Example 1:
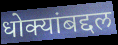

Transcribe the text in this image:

धोक्यांबद्दल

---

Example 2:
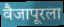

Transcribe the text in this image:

वैजापूरला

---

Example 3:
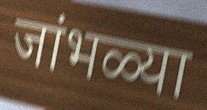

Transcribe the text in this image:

जांभळ्या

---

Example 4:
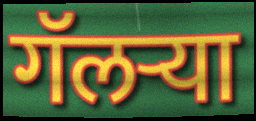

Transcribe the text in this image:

गॅलऱ्या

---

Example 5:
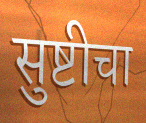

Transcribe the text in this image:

सुष्टीचा